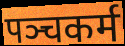
पञ्चकर्म